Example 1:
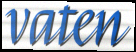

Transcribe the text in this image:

vaten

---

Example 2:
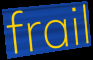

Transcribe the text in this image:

frail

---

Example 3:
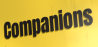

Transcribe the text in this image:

Companions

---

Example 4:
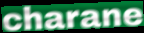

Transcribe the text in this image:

charane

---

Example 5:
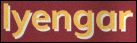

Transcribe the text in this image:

Iyengar